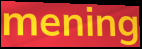
mening